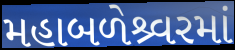
મહાબળેશ્ર્વરમાં